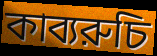
কাব্যরুচি